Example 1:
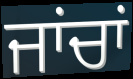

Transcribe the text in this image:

ਜਾਂਚਾਂ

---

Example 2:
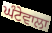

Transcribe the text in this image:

ਘੰਟੇਵਾਲਾ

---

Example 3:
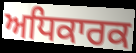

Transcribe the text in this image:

ਅਧਿਕਾਰਕ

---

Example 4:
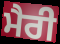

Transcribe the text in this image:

ਮੈਰੀ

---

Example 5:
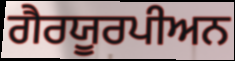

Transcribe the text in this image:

ਗੈਰਯੂਰਪੀਅਨ